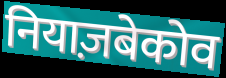
नियाज़बेकोव